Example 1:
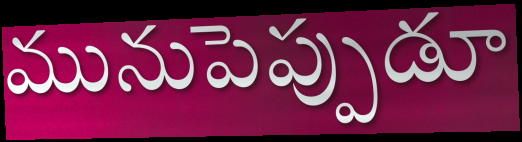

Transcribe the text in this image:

మునుపెప్పుడూ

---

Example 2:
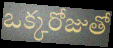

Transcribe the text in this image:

ఒక్కరోజుతో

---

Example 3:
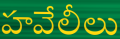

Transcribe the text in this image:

హవేలీలు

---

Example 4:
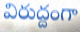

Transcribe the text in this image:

విరుద్దంగా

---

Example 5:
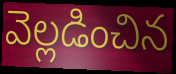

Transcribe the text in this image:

వెల్లడించిన